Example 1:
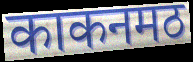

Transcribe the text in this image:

काकनमठ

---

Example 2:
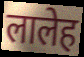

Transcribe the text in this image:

लालेह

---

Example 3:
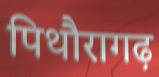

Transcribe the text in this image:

पिथौरागढ़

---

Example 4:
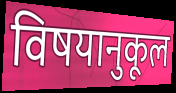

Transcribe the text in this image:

विषयानुकूल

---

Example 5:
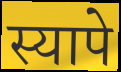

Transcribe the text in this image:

स्यापे